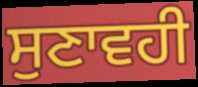
ਸੁਣਾਵਹੀ